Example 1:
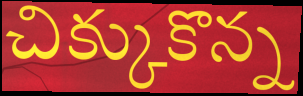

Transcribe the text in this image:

చిక్కుకొన్న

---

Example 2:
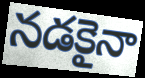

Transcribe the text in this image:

నడకైనా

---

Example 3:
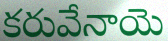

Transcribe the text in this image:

కరువేనాయె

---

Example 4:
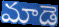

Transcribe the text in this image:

మాడె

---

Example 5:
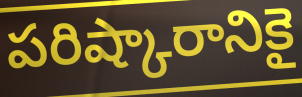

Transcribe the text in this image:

పరిష్కారానికై